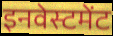
इनवेस्‍टमेंट